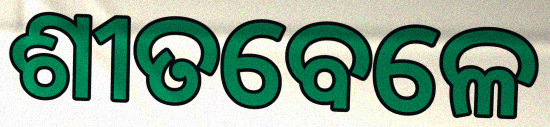
ଶୀତବେଳେ